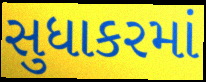
સુધાકરમાં